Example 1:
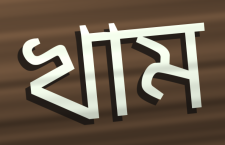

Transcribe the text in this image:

খাম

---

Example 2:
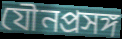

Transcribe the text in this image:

যৌনপ্রসঙ্গ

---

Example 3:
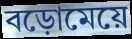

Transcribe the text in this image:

বড়োমেয়ে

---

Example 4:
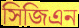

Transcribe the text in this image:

সিজিএন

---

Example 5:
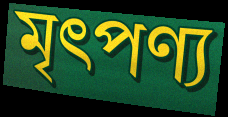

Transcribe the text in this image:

মৃৎপণ্য